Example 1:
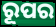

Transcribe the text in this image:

ରୂପର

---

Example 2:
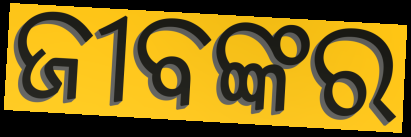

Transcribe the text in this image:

ଜୀବଙ୍କର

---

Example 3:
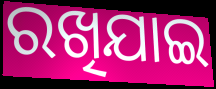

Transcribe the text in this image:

ରଖିଯାଇ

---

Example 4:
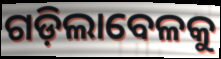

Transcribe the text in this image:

ଗଡ଼ିଲାବେଳକୁ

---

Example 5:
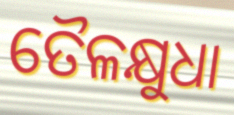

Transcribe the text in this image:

ତୈଳକ୍ଷୁଧା